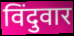
विंदुवार